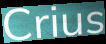
Crius